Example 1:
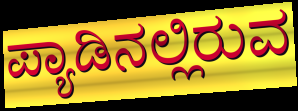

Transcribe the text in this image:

ಪ್ಯಾಡಿನಲ್ಲಿರುವ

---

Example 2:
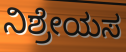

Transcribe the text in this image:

ನಿಶ್ರೇಯಸ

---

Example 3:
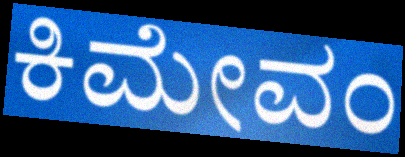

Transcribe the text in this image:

ಕಿಮೇವಂ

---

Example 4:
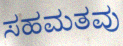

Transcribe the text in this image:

ಸಹಮತವು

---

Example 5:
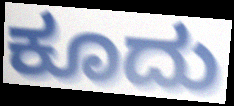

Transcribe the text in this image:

ಕೂದು